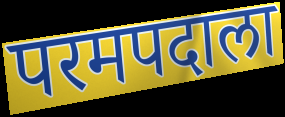
परमपदाला